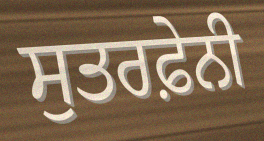
ਸੁਤਰਫ਼ੇਨੀ